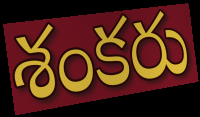
శంకరు